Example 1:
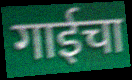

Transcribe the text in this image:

गाईचा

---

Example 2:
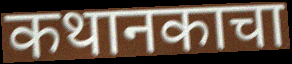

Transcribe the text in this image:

कथानकाचा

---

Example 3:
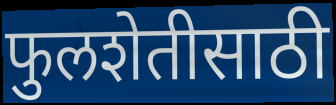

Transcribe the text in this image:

फुलशेतीसाठी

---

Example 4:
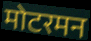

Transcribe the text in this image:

मोटरमन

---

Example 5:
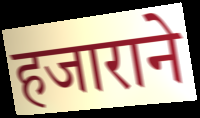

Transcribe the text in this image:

हजाराने